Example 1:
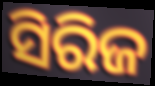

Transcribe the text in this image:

ସିରିଜ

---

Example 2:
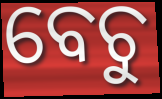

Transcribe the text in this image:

ବେଚୁ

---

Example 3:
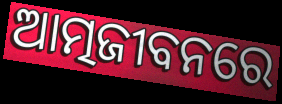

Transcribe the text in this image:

ଆତ୍ମଜୀବନରେ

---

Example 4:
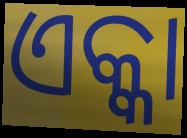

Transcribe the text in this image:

ଏକ୍କା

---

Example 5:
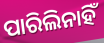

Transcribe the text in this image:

ପାରିଲିନାହିଁ